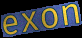
exon